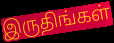
இருதிங்கள்